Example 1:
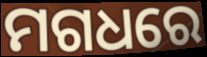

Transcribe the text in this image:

ମଗଧରେ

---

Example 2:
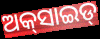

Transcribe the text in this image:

ଅକ୍‌ସାଇଡ୍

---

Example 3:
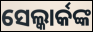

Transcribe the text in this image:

ସେଲ୍କାର୍କଙ୍କ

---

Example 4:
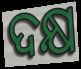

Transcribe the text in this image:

ଦକ୍ଷ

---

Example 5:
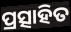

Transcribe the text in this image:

ପ୍ରତ୍ସାହିତ